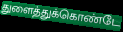
துளைத்துக்கொண்டே